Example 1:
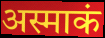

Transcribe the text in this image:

अस्माकं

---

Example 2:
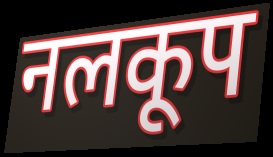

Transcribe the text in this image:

नलकूप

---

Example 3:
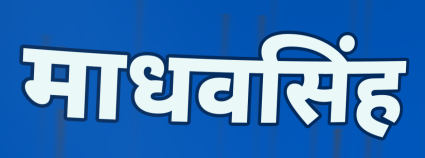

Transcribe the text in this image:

माधवसिंह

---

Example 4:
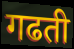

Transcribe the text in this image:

गढती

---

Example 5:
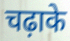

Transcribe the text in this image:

चढ़ाके